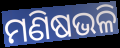
ମଣିଷଭଳି